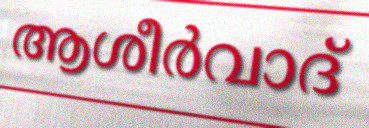
ആശീർവാദ്